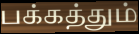
பக்கத்தும்